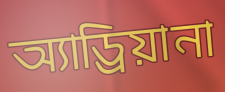
অ্যাড্রিয়ানা